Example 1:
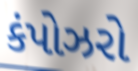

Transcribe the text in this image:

કંપોઝરો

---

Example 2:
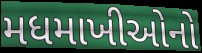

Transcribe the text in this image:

મધમાખીઓનો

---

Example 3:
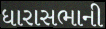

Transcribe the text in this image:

ધારાસભાની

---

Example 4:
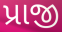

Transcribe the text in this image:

પ્રાજી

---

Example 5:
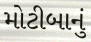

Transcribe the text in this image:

મોટીબાનું